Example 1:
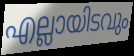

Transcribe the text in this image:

എല്ലായിടവും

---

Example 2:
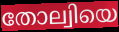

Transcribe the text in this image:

തോല്വിയെ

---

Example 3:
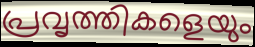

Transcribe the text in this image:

പ്രവൃത്തികളെയും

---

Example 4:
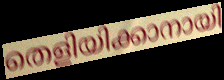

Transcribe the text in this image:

തെളിയിക്കാനായി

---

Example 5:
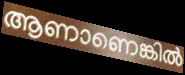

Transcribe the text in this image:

ആണാണെങ്കിൽ